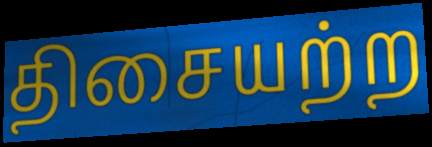
திசையற்ற